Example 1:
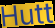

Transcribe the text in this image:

Hutt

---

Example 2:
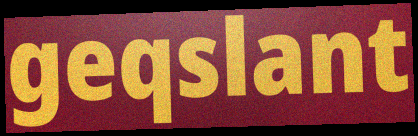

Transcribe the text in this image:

geqslant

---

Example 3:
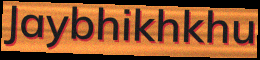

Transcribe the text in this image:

Jaybhikhkhu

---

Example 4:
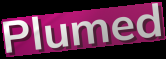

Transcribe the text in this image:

Plumed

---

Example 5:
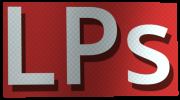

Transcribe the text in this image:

LPs